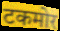
टकमोर